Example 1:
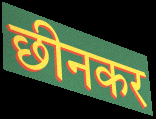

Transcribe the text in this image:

छीनकर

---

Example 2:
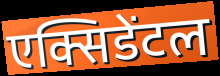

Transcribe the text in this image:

एक्सिडेंटल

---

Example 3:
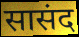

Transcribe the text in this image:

सासंद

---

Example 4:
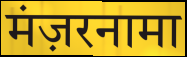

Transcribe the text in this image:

मंज़रनामा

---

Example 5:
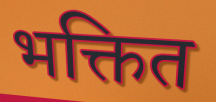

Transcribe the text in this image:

भक्तित